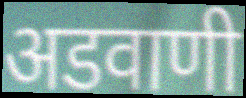
अडवाणी